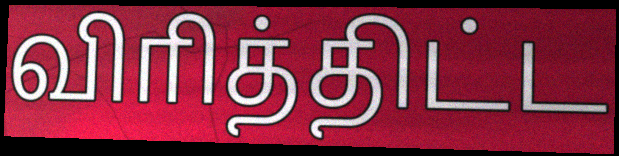
விரித்திட்ட